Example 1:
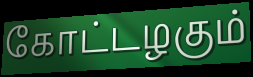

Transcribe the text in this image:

கோட்டழகும்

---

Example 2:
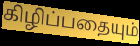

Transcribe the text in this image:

கிழிப்பதையும்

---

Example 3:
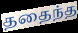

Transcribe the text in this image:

ததைந்த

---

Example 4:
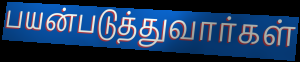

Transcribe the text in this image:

பயன்படுத்துவார்கள்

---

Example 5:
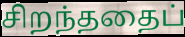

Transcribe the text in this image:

சிறந்ததைப்